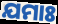
ଯମାଃ